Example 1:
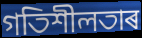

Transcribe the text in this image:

গতিশীলতাৰ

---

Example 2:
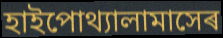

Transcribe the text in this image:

হাইপোথ্যালামাসেৰ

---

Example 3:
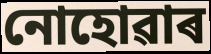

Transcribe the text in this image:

নোহোৱাৰ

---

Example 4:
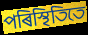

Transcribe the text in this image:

পৰিস্থিতিতে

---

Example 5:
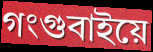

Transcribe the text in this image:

গংগুবাইয়ে